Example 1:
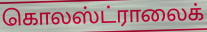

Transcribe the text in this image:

கொலஸ்ட்ராலைக்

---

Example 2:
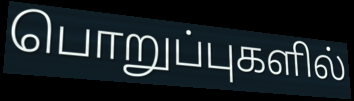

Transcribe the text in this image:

பொறுப்புகளில்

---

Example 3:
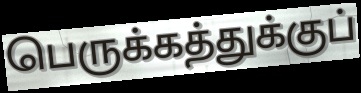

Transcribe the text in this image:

பெருக்கத்துக்குப்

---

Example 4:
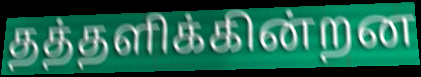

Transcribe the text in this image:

தத்தளிக்கின்றன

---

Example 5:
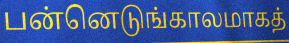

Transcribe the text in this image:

பன்னெடுங்காலமாகத்